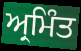
ਅ੍ਰਮਿੰਤ